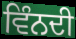
ਵਿੰਨਦੀ